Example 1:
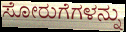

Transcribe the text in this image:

ಸೋರುಗೆಗಳನ್ನು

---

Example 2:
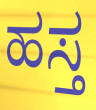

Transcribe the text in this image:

ಹಸ್ತ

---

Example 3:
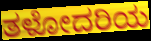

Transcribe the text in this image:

ತಳೋದರಿಯ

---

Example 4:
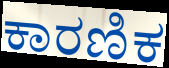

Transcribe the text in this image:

ಕಾರಣಿಕ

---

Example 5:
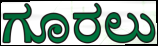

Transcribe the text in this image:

ಗೂರಲು